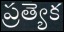
ప్రత్యెక